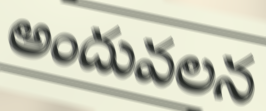
అందువలన